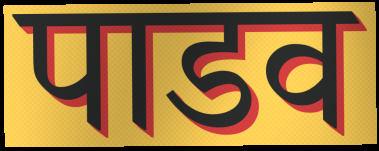
पाडव